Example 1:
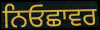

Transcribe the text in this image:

ਨਿਓਛਾਵਰ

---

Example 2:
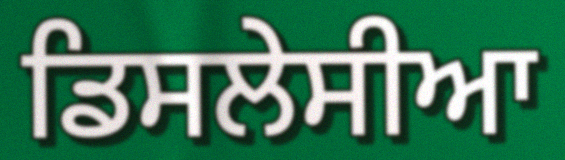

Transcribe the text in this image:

ਡਿਸਲੇਸੀਆ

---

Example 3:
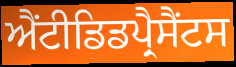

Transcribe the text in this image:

ਐਂਟੀਡਿਡਪ੍ਰੈਸੈਂਟਸ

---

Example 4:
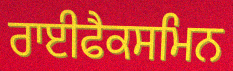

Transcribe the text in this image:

ਰਾਈਫੈਕਸਮਿਨ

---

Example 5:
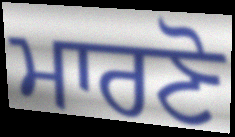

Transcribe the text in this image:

ਮਾਰਣੋ